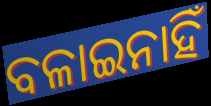
ବଳାଇନାହିଁ